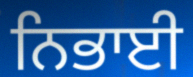
ਨਿਭਾਈ